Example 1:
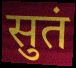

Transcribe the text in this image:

सुतं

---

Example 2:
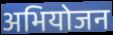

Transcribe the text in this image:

अभियोजन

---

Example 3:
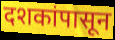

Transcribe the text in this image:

दशकांपासून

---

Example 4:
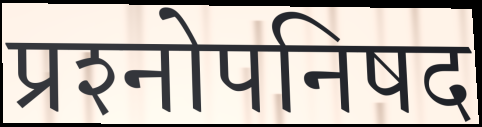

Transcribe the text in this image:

प्रश्नोपनिषद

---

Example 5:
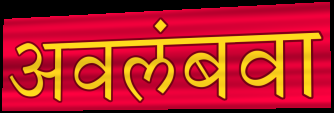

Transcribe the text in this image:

अवलंबवा